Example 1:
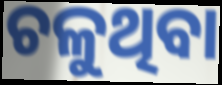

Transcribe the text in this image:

ଚଳୁଥିବା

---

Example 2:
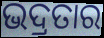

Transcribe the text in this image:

ଭଦ୍ରତାର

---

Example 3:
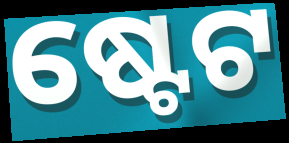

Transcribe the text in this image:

ଷ୍ଟେଟ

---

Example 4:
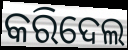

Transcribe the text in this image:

କରିଦେଲ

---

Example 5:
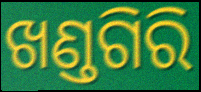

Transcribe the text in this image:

ଖଣ୍ଡଗିରି